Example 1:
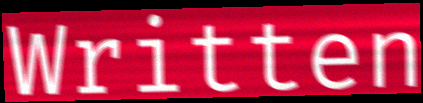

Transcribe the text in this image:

Written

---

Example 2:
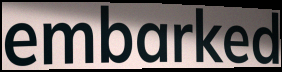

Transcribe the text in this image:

embarked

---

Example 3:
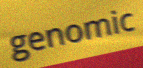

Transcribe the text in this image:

genomic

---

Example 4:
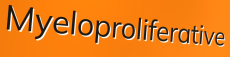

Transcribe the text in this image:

Myeloproliferative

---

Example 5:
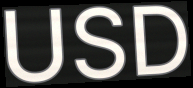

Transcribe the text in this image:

USD